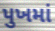
પુખમાં